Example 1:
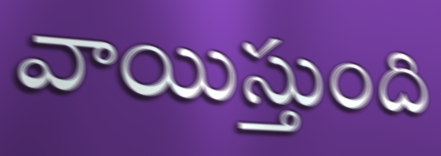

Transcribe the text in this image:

వాయిస్తుంది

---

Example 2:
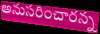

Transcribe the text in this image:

అనుసరించారన్న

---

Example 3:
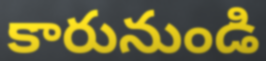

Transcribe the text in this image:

కారునుండి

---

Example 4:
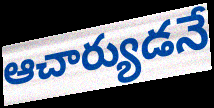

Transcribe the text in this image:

ఆచార్యుడనే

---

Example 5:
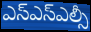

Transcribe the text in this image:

ఎస్ఎస్ఎల్సీ